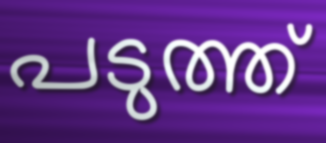
പടുത്ത്